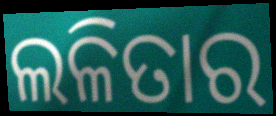
ଲଳିତାର